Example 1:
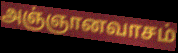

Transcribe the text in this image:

அஞ்ஞானவாசம்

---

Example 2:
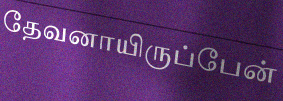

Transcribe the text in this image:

தேவனாயிருப்பேன்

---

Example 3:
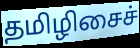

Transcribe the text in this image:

தமிழிசைச்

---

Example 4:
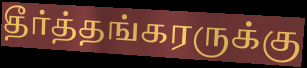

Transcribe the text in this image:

தீர்த்தங்கரருக்கு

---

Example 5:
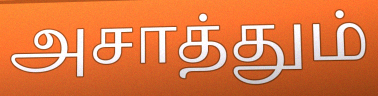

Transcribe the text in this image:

அசாத்தும்